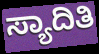
ಸ್ಯಾದಿತಿ